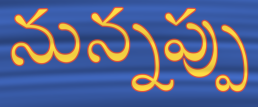
నున్నప్పు